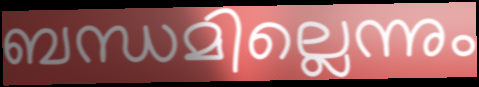
ബന്ധമില്ലെന്നും